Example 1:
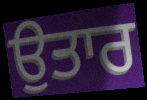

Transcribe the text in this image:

ਉਤਾਰ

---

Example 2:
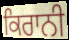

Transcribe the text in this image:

ਕਿਰਾਨੀ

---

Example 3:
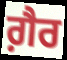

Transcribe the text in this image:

ਗ਼ੈਰ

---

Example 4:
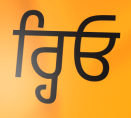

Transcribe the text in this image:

ਰ੍ਹਿਓ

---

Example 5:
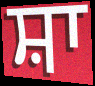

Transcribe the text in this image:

ਸ਼ਾ